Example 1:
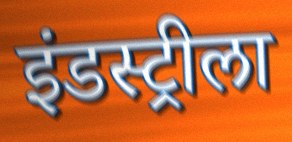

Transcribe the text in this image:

इंडस्ट्रीला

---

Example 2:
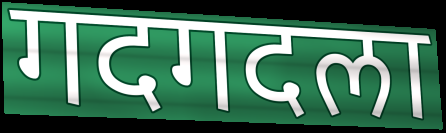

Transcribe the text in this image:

गदगदला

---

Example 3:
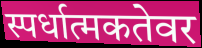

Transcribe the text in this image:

स्पर्धात्मकतेवर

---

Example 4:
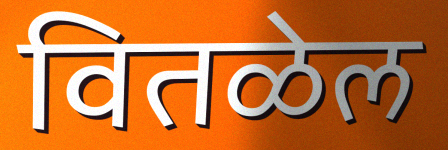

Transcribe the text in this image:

वितळेल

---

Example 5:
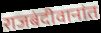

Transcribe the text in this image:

राजबंदीवानांत